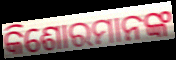
କିଶୋରମାନଙ୍କ